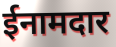
ईनामदार